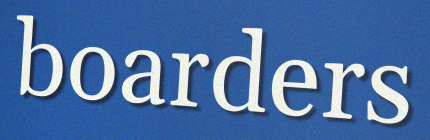
boarders